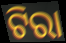
ଟିରା